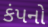
કંપનો